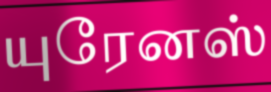
யுரேனஸ்